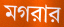
মগরার